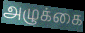
அழுக்கை